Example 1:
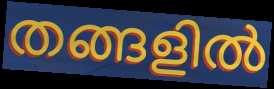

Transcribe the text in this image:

തങ്ങളിൽ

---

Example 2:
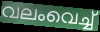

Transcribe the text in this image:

വലംവെച്ച്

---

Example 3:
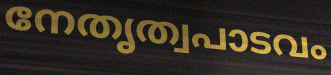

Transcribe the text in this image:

നേതൃത്വപാടവം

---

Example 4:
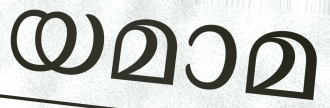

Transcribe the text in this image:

യമാമ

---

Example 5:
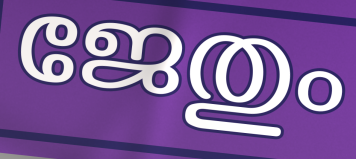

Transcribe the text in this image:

ജേതും